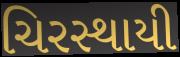
ચિરસ્થાયી